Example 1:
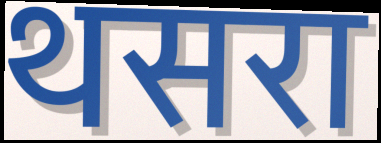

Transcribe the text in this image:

थसरा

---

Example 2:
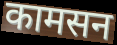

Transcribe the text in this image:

कामसन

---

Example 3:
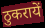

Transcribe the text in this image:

ठुकरायें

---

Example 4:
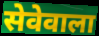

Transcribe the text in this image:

सेवेवाला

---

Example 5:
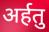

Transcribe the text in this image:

अर्हतु